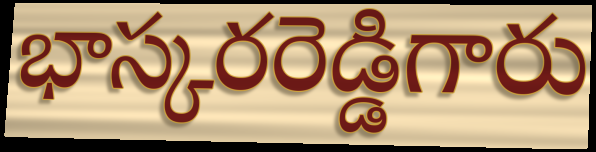
భాస్కరరెడ్డిగారు